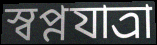
স্বপ্নযাত্রা